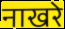
नाखरे